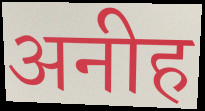
अनीह